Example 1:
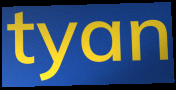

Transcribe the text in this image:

tyan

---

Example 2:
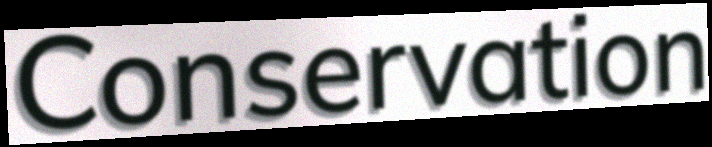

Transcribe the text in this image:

Conservation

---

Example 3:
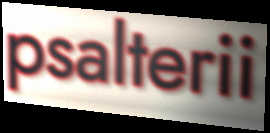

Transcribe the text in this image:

psalterii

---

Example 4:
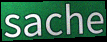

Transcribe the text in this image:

sache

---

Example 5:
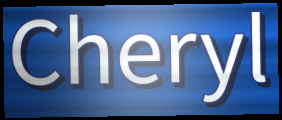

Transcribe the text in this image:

Cheryl